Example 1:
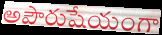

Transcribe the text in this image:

అపౌరుషేయంగా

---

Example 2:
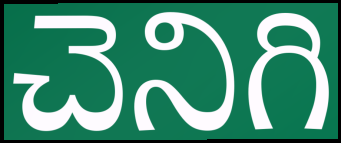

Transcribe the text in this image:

చెనిగి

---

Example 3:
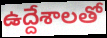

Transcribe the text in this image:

ఉద్దేశాలతో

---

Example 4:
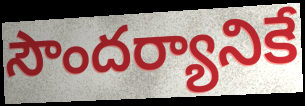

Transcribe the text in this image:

సౌందర్యానికే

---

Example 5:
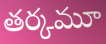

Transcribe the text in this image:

తర్కమూ